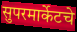
सुपरमार्केटचे